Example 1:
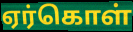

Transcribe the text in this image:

ஏர்கொள்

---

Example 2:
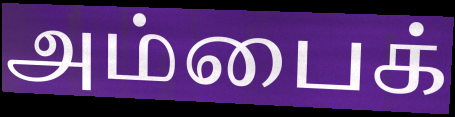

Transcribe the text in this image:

அம்பைக்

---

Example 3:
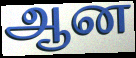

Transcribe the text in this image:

ஆன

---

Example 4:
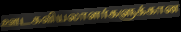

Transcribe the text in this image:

ஊடகவியலாளர்களுக்கான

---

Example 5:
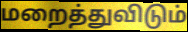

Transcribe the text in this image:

மறைத்துவிடும்